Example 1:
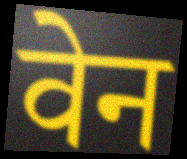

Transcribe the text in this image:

वेन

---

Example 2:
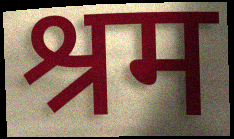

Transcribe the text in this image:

श्रम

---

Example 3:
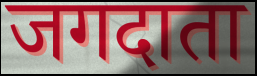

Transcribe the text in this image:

जगदाता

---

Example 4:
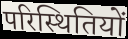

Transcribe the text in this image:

परिस्थितियों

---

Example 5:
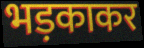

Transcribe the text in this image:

भड़काकर